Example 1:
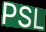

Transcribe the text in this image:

PSL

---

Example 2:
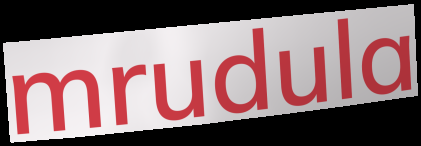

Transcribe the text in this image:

mrudula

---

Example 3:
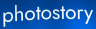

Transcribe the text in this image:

photostory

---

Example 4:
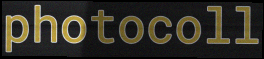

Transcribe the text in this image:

photocoll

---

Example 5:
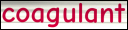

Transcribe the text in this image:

coagulant